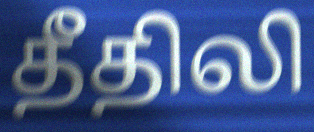
தீதிலி